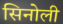
सिनोली